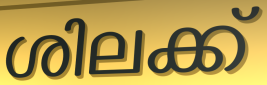
ശിലക്ക്